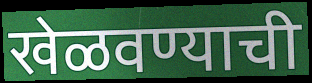
खेळवण्याची